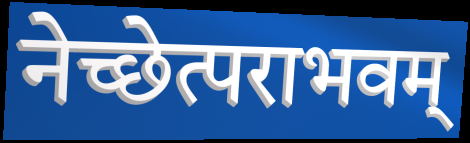
नेच्छेत्पराभवम्